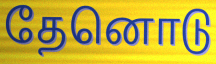
தேனொடு